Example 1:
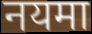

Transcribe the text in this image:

नयमा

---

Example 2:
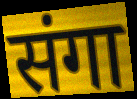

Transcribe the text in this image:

संगा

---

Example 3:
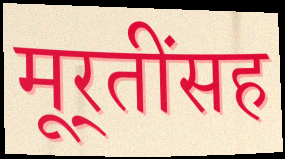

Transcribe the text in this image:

मूर्तींसह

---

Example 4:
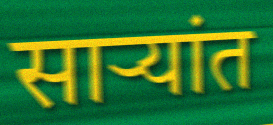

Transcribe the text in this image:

साऱ्यांत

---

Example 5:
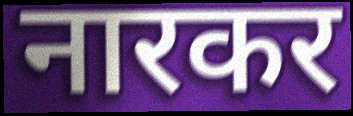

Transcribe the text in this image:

नारकर